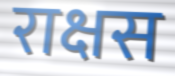
राक्षस